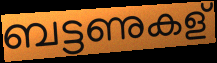
ബട്ടണുകള്